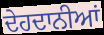
ਦੇਹਦਾਨੀਆਂ